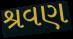
શ્રવણ